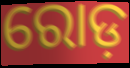
ରୋଡ଼